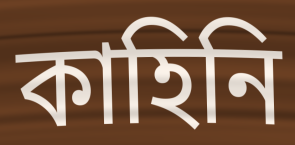
কাহিনি